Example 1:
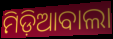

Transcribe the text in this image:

ମିଡ଼ିଆବାଲା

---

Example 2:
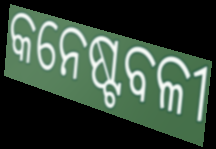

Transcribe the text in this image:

କନେଷ୍ଟବଳୀ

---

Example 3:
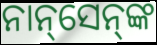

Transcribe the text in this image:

ନାନ୍‌ସେନ୍‌ଙ୍କ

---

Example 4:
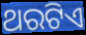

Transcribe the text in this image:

ଥରଟିଏ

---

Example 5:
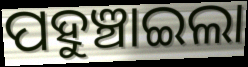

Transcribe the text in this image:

ପହୁଞ୍ଚାଇଲା